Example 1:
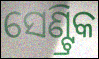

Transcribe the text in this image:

ସେଣ୍ଟ୍ରିକ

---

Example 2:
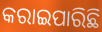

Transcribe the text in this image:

କରାଇପାରିଛି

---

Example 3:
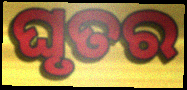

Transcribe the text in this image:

ଘୃତର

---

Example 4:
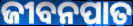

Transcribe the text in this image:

ଜୀବନପାତ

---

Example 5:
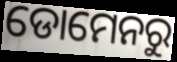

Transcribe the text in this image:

ଡୋମେନରୁ